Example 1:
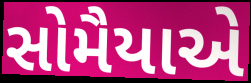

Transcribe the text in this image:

સોમૈયાએ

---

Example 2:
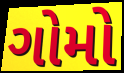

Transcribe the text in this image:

ગોમો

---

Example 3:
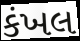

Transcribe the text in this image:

કંખલ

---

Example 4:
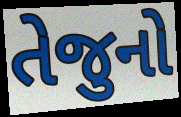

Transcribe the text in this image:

તેજુનો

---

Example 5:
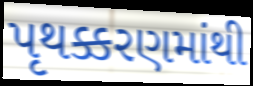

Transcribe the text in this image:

પૃથક્કરણમાંથી